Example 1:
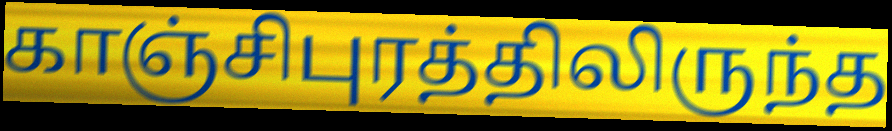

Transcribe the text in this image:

காஞ்சிபுரத்திலிருந்த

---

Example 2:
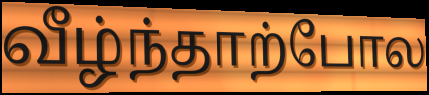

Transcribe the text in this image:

வீழ்ந்தாற்போல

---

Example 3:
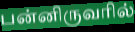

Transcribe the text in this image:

பன்னிருவரில்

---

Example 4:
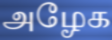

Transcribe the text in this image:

அழேக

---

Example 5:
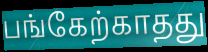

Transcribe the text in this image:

பங்கேற்காதது